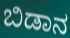
ಬಿಡಾನ